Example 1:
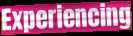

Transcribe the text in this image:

Experiencing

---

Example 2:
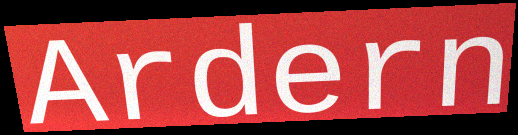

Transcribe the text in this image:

Ardern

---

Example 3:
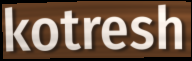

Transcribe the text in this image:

kotresh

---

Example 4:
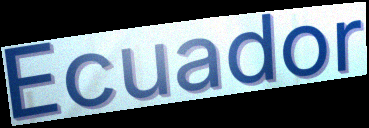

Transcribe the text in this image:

Ecuador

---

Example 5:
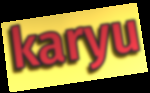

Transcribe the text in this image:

karyu